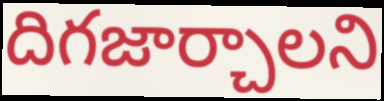
దిగజార్చాలని